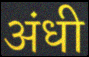
अंधी